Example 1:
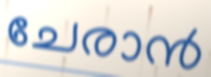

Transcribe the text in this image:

ചേരാൻ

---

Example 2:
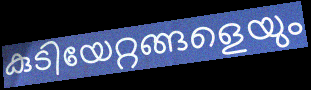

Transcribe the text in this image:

കുടിയേറ്റങ്ങളെയും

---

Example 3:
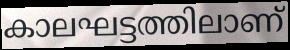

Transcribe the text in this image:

കാലഘട്ടത്തിലാണ്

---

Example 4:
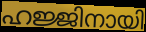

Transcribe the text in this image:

ഹജ്ജിനായി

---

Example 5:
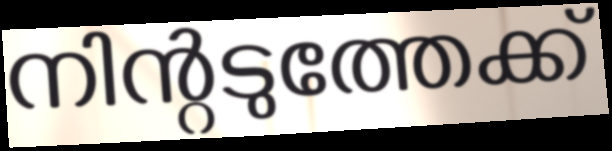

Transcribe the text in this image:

നിന്റടുത്തേക്ക്